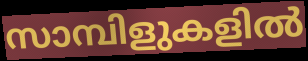
സാമ്പിളുകളിൽ